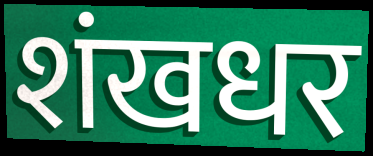
शंखधर